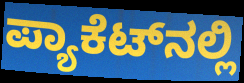
ಪ್ಯಾಕೆಟ್‍ನಲ್ಲಿ